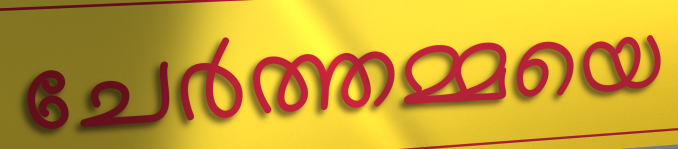
ചേർത്തമ്മയെ